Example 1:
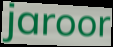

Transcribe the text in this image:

jaroor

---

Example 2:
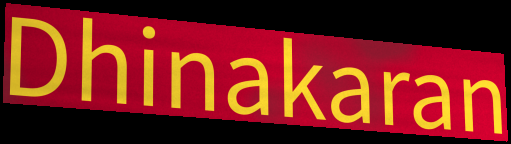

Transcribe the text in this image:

Dhinakaran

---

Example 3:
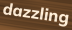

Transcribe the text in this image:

dazzling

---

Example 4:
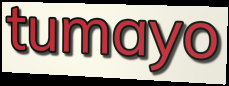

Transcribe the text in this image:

tumayo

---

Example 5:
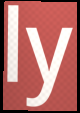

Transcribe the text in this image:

ly